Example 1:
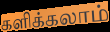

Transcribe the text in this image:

களிக்கலாம்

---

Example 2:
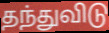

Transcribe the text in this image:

தந்துவிடு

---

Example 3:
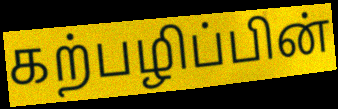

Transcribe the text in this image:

கற்பழிப்பின்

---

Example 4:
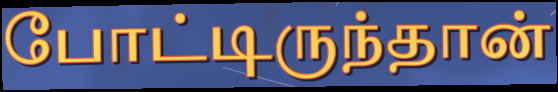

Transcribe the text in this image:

போட்டிருந்தான்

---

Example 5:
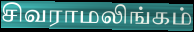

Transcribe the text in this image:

சிவராமலிங்கம்